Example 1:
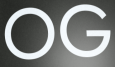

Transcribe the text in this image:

OG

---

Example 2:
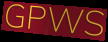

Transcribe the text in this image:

GPWS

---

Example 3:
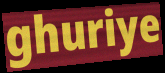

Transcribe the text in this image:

ghuriye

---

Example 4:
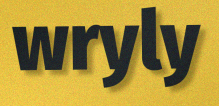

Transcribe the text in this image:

wryly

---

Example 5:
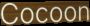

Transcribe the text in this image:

Cocoon